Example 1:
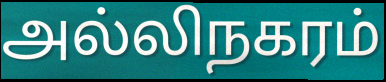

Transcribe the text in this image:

அல்லிநகரம்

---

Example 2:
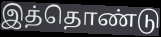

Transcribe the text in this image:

இத்தொண்டு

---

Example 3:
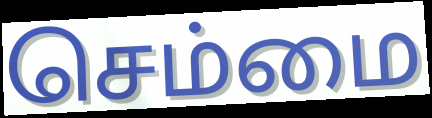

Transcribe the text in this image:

செம்மை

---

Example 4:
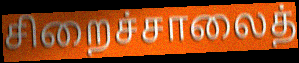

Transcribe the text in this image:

சிறைச்சாலைத்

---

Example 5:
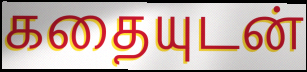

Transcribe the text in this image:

கதையுடன்